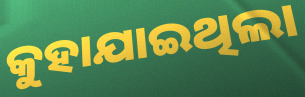
କୁହାଯାଇଥିଲା